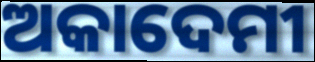
ଅକାଦେମୀ